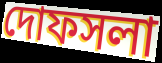
দোফসলা